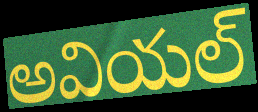
అవియల్